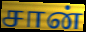
சான்